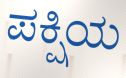
ಪಕ್ಷಿಯ